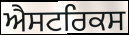
ਐਸਟਰਿਕਸ